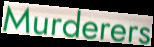
Murderers